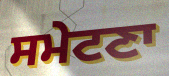
ਸਮੇਟਣਾ